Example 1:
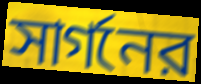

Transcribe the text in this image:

সার্গনের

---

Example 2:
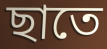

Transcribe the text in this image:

ছাতে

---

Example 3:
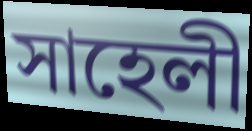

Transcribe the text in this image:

সাহেলী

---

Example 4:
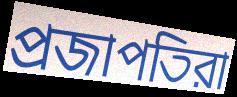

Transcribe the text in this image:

প্রজাপতিরা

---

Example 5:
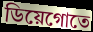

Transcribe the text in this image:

ডিয়েগোতে